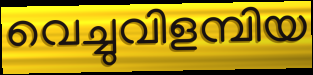
വെച്ചുവിളമ്പിയ